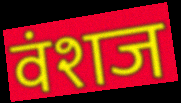
वंशज